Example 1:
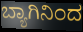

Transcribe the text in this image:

ಬ್ಯಾಗಿನಿಂದ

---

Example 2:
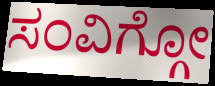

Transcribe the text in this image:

ಸಂವಿಗ್ಗೋ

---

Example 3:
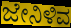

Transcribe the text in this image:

ಜೇನಿಳಿವ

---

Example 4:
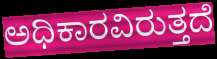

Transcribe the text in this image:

ಅಧಿಕಾರವಿರುತ್ತದೆ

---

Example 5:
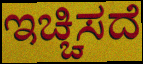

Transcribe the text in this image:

ಇಚ್ಚಿಸದೆ